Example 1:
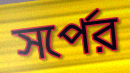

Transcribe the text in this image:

সর্পের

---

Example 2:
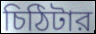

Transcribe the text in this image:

চিঠিটার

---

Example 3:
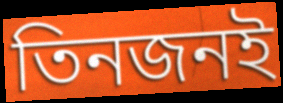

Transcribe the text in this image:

তিনজনই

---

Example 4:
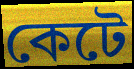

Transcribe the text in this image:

কেটে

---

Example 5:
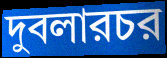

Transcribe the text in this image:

দুবলারচর